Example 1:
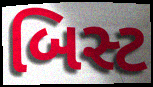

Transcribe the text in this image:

બિસ્ટ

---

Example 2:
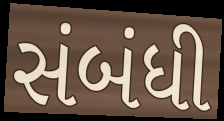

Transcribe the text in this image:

સંબંધી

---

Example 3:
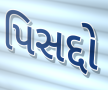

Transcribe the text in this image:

પિસદ્દો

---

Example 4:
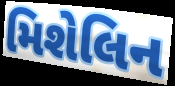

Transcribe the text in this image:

મિશેલિન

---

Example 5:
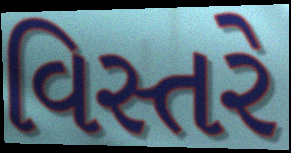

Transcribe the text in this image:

વિસ્તરે